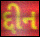
દ્દીન